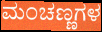
ಮಂಚಣ್ಣಗಳ